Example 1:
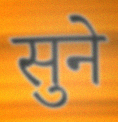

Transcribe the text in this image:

सुने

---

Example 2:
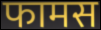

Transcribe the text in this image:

फामस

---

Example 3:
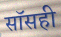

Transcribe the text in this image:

सॉसही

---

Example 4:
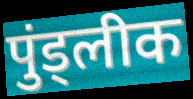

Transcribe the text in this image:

पुंड्लीक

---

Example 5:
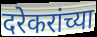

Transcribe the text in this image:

दरेकरांच्या